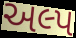
અલ્પ